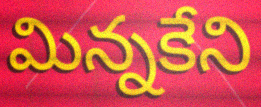
మిన్నకేని